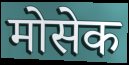
मोसेक